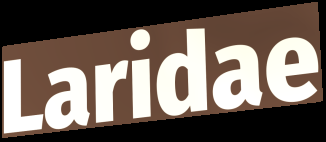
Laridae